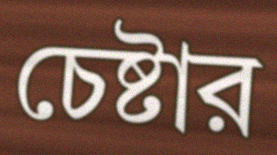
চেষ্টার